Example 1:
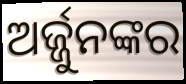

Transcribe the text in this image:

ଅର୍ଜ୍ଜୁନଙ୍କର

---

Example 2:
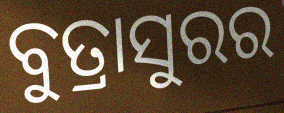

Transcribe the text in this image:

ବୁତ୍ରାସୁରର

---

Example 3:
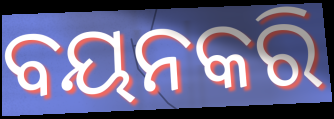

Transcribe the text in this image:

ବୟନକରି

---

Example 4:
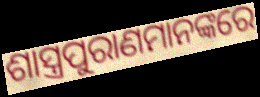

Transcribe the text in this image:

ଶାସ୍ତ୍ରପୁରାଣମାନଙ୍କରେ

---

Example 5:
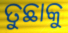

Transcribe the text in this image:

ତୁଛାକୁ